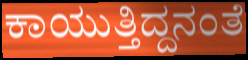
ಕಾಯುತ್ತಿದ್ದನಂತೆ